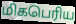
மிகபெரிய